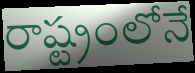
రాష్ట్రంలోనే